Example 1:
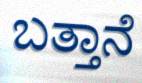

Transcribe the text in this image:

ಬತ್ತಾನೆ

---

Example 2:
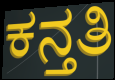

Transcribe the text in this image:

ಕನ್ತತಿ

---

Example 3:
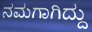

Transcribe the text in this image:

ನಮಗಾಗಿದ್ದು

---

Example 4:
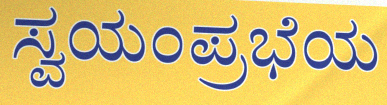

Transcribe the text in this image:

ಸ್ವಯಂಪ್ರಭೆಯ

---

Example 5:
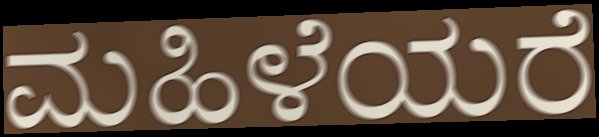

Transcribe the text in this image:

ಮಹಿಳೆಯರೆ